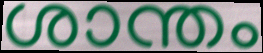
ശാന്തം